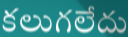
కలుగలేదు